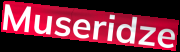
Museridze